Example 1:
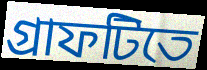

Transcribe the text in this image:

গ্রাফটিতে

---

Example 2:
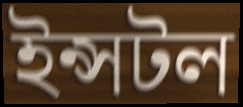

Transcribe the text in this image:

ইন্সটল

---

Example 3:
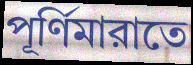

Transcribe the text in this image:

পূর্ণিমারাতে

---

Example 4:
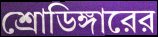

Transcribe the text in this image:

শ্রোডিঙ্গারের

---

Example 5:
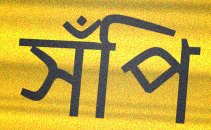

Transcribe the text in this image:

সঁপি